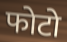
फोटो